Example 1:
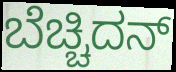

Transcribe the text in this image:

ಬೆಚ್ಚಿದನ್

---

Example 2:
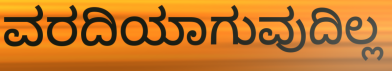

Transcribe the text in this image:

ವರದಿಯಾಗುವುದಿಲ್ಲ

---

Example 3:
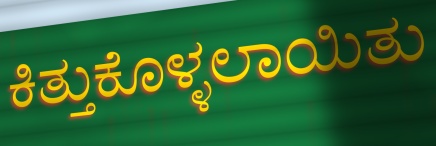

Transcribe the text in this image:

ಕಿತ್ತುಕೊಳ್ಳಲಾಯಿತು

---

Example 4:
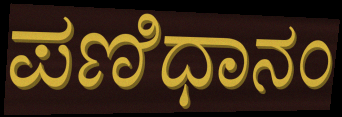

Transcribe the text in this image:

ಪಣಿಧಾನಂ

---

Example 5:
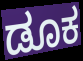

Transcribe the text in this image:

ಡೂಕ